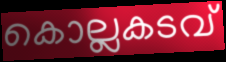
കൊല്ലകടവ്